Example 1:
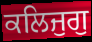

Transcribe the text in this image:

ਕਲਿਜੁਗੁ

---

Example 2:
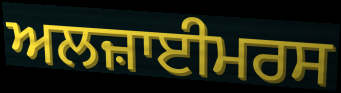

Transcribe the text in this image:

ਅਲਜ਼ਾਈਮਰਸ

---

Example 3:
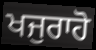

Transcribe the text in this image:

ਖਜੁਰਾਹੋ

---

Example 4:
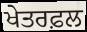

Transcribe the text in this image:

ਖੇਤਰਫ਼ਲ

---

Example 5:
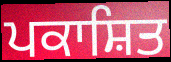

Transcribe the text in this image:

ਪਕਾਸ਼ਿਤ